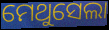
ମେଥୁସେଲା